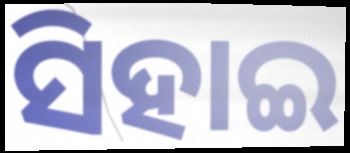
ସିହାଇ